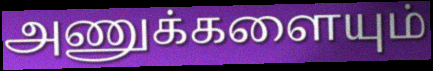
அணுக்களையும்